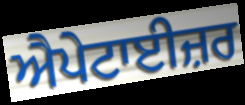
ਐਪੇਟਾਈਜ਼ਰ